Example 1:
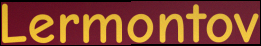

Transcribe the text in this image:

Lermontov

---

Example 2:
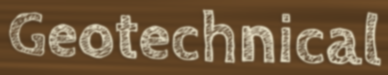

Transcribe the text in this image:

Geotechnical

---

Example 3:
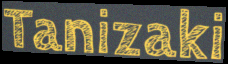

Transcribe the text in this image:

Tanizaki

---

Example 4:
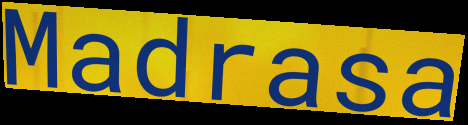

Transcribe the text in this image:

Madrasa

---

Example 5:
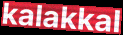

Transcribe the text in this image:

kalakkal